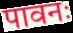
पावनः